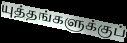
யுத்தங்களுக்குப்